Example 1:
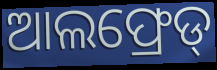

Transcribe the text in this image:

ଆଲଫ୍ରେଡ୍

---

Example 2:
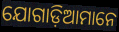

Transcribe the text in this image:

ଯୋଗାଡ଼ିଆମାନେ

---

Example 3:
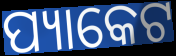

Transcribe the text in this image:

ପ୍ୟାକେଟ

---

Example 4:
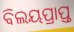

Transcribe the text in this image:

ବିଲୟପ୍ରାପ୍ତ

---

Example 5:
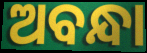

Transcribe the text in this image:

ଅବନ୍ଧା